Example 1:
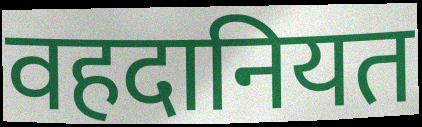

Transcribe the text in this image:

वहदानियत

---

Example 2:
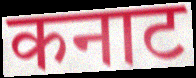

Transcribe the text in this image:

कनाट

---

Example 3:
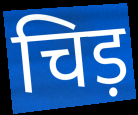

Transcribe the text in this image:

चिड़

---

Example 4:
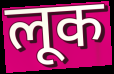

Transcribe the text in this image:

लूक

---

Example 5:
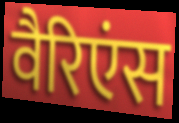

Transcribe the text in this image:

वैरिएंस